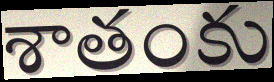
శాతంకు